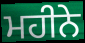
ਮਹੀਨੇ